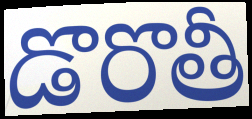
డొరొతీ